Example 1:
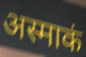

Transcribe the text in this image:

अस्माकं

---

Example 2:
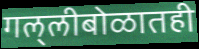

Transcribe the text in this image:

गल्लीबोळातही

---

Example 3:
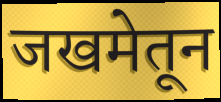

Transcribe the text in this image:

जखमेतून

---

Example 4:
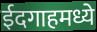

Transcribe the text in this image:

ईदगाहमध्ये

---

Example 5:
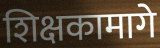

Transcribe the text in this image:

शिक्षकामागे